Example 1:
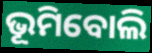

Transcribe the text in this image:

ଭୂମିବୋଲି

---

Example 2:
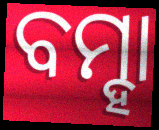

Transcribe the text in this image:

ବମ୍ହା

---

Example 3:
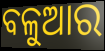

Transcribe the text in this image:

ବଳୁଆର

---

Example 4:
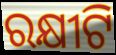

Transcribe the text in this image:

ରକ୍ଷୀଟି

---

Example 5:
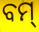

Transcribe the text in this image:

ବମ୍